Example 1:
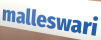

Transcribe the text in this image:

malleswari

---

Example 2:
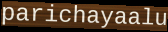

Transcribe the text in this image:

parichayaalu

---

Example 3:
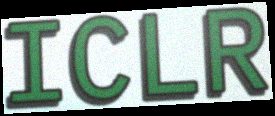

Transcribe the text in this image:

ICLR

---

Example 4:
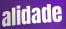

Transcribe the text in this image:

alidade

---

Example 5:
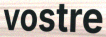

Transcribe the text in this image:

vostre